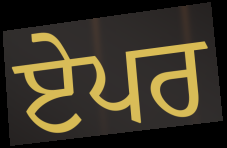
ਏਪਰ